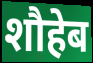
शौहेब